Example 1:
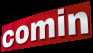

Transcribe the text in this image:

comin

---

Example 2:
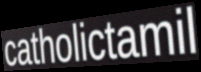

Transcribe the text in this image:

catholictamil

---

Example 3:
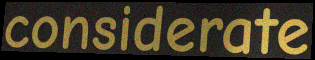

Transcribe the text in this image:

considerate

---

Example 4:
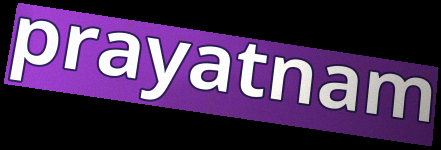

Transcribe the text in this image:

prayatnam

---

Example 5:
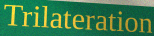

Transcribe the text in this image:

Trilateration